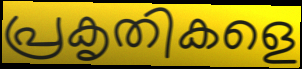
പ്രകൃതികളെ